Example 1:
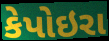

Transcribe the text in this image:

કેપોઇરા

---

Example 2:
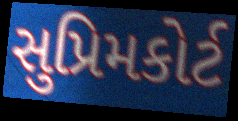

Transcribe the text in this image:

સુપ્રિમકોર્ટ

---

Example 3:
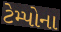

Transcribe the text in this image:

ટેમ્પોના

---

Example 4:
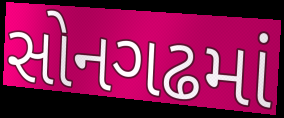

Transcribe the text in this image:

સોનગઢમાં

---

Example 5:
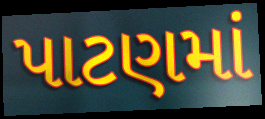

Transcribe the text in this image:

પાટણમાં